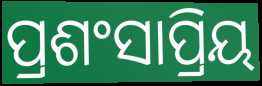
ପ୍ରଶଂସାପ୍ରିୟ